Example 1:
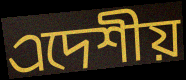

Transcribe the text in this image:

এদেশীয়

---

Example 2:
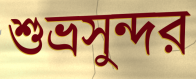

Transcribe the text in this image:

শুভ্রসুন্দর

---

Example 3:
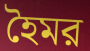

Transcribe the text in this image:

হৈমর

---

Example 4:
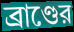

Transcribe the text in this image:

ব্রাণ্ডের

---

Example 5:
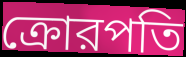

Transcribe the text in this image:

ক্রোরপতি